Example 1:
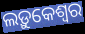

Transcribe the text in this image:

ଲଡ଼ୁକେଶ୍ୱର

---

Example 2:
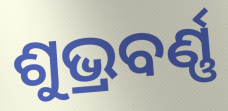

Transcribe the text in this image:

ଶୁଭ୍ରବର୍ଣ୍ଣ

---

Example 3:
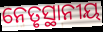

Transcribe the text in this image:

ନେତୃସ୍ଥାନୀୟ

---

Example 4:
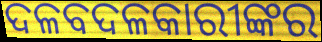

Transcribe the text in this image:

ଦଳବଦଳକାରୀଙ୍କର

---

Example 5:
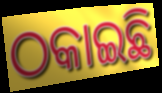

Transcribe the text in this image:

ଠକାଇଛି